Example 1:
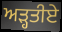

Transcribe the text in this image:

ਅੜ੍ਹਤੀਏ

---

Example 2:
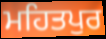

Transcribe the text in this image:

ਮਹਿਤਪੁਰ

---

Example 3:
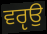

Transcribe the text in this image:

ਵਰੵਉ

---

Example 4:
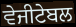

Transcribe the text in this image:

ਵੇਜੀਟੇਬਲ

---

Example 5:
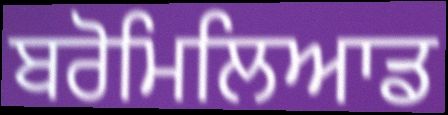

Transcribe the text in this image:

ਬਰੋਮਿਲਿਆਡ